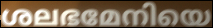
ശലഭമേനിയെ